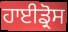
ਹਾਈਡ੍ਰੋਸ